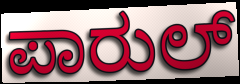
ಪಾರುಲ್